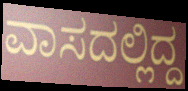
ವಾಸದಲ್ಲಿದ್ದ